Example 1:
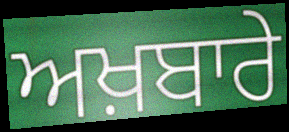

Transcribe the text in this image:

ਅਖ਼ਬਾਰੇ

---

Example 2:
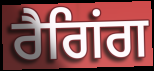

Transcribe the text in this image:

ਰੈਗਿਂਗ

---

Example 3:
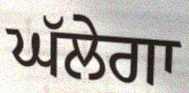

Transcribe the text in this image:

ਘੱਲੇਗਾ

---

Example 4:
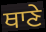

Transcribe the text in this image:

ਥਾਣੇ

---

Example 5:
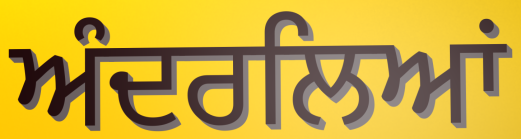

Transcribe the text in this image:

ਅੰਦਰਲਿਆਂ